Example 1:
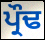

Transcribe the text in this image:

ਪ੍ਰੌਢ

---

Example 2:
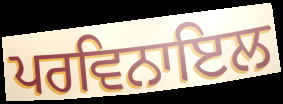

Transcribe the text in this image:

ਪਰਵਿਨਾਇਲ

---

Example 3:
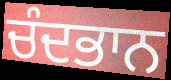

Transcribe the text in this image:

ਚੰਦਭਾਨ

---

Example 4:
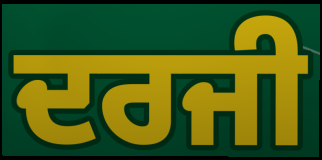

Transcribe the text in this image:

ਦਰਜੀ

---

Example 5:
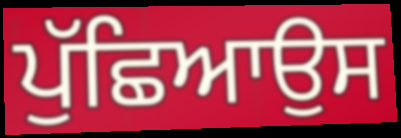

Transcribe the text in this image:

ਪੁੱਛਿਆਉਸ